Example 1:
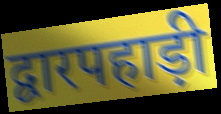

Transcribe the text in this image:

द्वारपहाड़ी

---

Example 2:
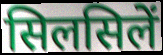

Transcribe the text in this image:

सिलसिलें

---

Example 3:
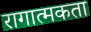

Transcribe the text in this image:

रागात्मकता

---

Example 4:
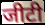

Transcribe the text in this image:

जीटी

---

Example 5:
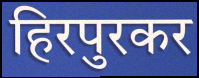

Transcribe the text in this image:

हिरपुरकर